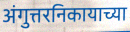
अंगुत्तरनिकायाच्या